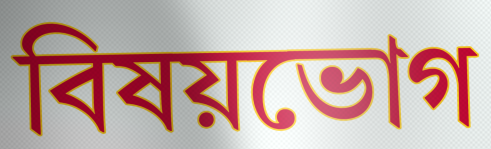
বিষয়ভোগ